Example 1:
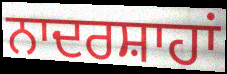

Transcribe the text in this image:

ਨਾਦਰਸ਼ਾਹਾਂ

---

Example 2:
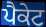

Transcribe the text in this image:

ਪੈਕੇਟ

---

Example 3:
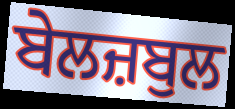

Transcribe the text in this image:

ਬੇਲਜ਼ਬੁਲ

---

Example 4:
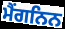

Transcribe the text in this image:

ਮੈਂਗਨਿਨ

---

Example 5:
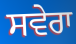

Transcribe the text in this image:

ਸਵੇਰਾ